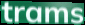
trams